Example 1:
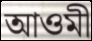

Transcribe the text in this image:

আওমী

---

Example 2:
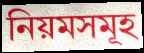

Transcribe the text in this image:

নিয়মসমূহ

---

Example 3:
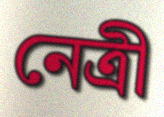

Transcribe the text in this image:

নেত্ৰী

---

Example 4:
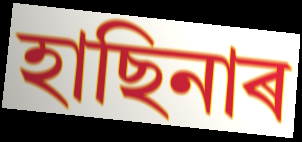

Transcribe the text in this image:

হাছিনাৰ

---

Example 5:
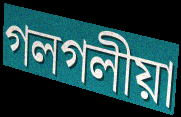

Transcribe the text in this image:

গলগলীয়া